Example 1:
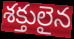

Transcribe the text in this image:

శక్తులైన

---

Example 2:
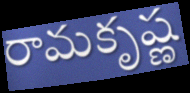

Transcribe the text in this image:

రామకృష్ణ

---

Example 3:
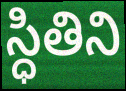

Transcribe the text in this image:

స్ధితిని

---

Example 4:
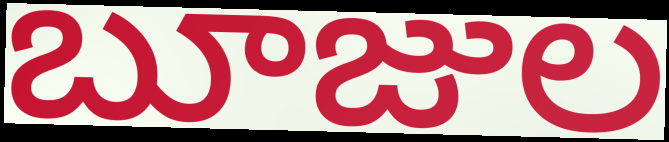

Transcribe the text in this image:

బూజుల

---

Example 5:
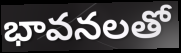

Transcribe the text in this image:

భావనలతో